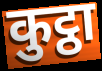
कुट्ठा